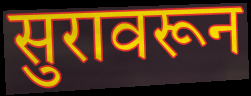
सुरावरून